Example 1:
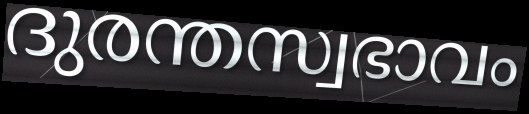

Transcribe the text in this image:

ദുരന്തസ്വഭാവം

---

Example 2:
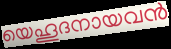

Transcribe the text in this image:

യെഹൂദനായവൻ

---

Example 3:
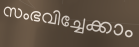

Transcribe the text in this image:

സംഭവിച്ചേക്കാം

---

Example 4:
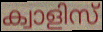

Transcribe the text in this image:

ക്വാളിസ്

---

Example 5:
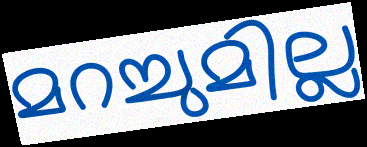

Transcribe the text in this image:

മറച്ചുമില്ല